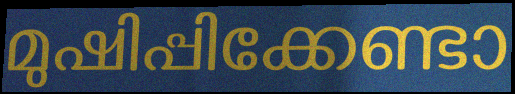
മുഷിപ്പിക്കേണ്ടാ